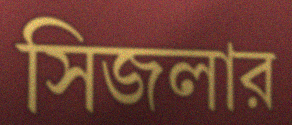
সিজলার